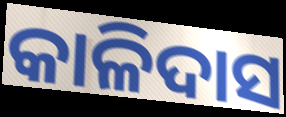
କାଳିଦାସ